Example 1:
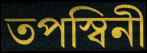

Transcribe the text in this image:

তপস্বিনী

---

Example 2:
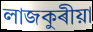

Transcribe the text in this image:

লাজকুৰীয়া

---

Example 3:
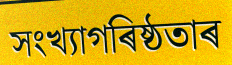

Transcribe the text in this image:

সংখ্যাগৰিষ্ঠতাৰ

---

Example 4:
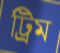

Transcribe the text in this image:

ট্ৰিম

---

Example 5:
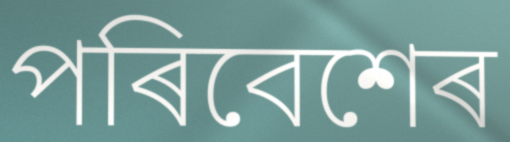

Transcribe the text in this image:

পৰিবেশেৰ